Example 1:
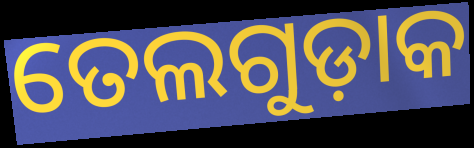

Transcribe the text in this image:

ତେଲଗୁଡ଼ାକ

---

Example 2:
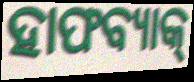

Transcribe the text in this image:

ହାଫବ୍ୟାକ୍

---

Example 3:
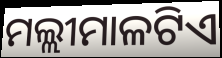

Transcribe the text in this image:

ମଲ୍ଲୀମାଳଟିଏ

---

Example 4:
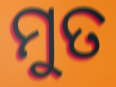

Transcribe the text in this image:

ମୁତ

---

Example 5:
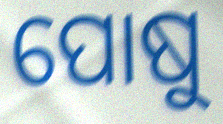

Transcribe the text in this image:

ପୋଷୁ